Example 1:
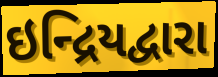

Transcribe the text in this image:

ઇન્દ્રિયદ્વારા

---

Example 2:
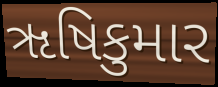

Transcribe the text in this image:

ૠષિકુમાર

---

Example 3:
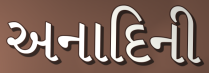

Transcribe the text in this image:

અનાદિની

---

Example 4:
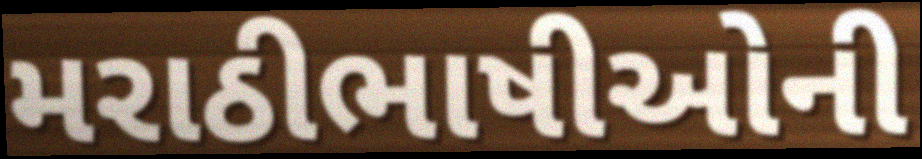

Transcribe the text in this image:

મરાઠીભાષીઓની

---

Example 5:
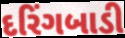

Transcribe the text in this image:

દરિંગબાડી